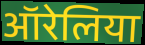
ऑरेलिया